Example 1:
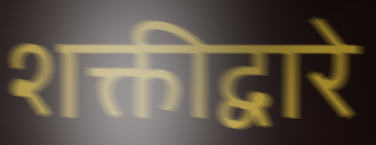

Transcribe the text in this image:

शक्तीद्वारे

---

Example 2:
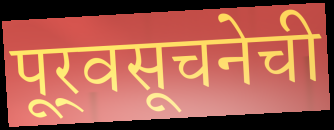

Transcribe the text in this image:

पूर्वसूचनेची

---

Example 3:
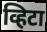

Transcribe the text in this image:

व्हिटा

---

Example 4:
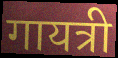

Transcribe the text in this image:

गायत्री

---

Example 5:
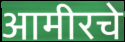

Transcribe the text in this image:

आमीरचे